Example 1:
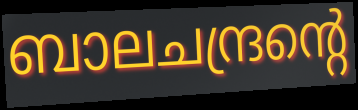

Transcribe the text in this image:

ബാലചന്ദ്രന്റെ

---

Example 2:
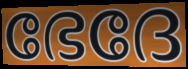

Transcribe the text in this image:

ഭേദേ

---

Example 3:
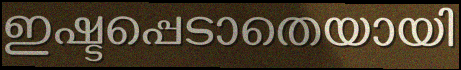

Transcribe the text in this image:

ഇഷ്ടപ്പെടാതെയായി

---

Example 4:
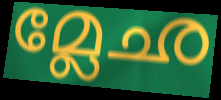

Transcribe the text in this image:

മ്ലേഛ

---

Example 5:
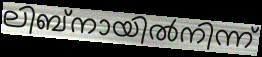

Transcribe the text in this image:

ലിബ്നായിൽനിന്ന്